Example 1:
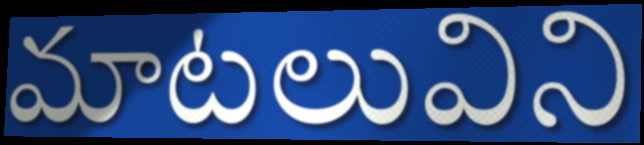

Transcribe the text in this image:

మాటలువిని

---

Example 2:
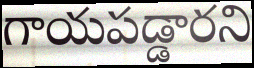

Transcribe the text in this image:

గాయపడ్డారని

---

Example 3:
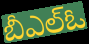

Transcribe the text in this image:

బీఎల్ఓ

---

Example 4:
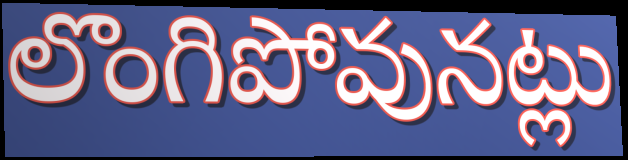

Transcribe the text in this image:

లొంగిపోవునట్లు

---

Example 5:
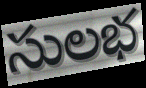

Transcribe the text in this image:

సులభ